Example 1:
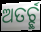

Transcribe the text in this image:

ଅତର୍ଚ୍ଛ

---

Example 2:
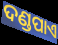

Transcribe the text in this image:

ଦଣ୍ଡପାଏ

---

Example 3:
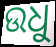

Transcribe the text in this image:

ଉଧୁ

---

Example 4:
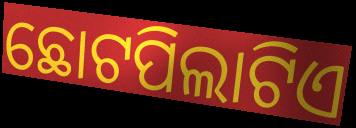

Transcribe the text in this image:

ଛୋଟପିଲାଟିଏ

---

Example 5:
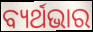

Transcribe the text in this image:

ବ୍ୟର୍ଥଭାର